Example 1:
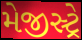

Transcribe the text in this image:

મેજીસ્ર્ટ્રે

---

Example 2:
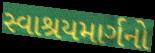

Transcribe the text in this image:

સ્વાશ્રયમાર્ગનો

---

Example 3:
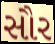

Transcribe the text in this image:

સૌર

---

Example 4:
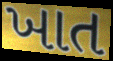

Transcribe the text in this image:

ખાત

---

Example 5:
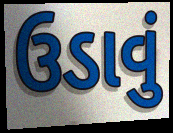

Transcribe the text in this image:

ઉડાવું